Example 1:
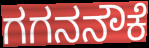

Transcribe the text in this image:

ಗಗನನೌಕೆ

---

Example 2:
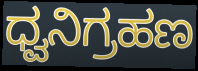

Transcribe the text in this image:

ಧ್ವನಿಗ್ರಹಣ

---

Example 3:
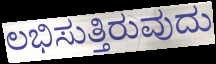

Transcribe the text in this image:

ಲಭಿಸುತ್ತಿರುವುದು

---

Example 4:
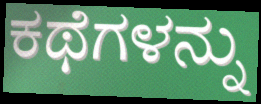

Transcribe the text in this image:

ಕಥೆಗಳನ್ನು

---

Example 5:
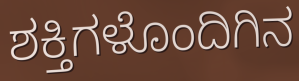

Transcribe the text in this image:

ಶಕ್ತಿಗಳೊಂದಿಗಿನ